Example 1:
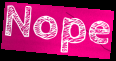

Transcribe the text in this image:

Nope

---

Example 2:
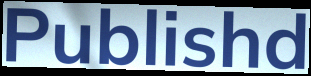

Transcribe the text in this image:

Publishd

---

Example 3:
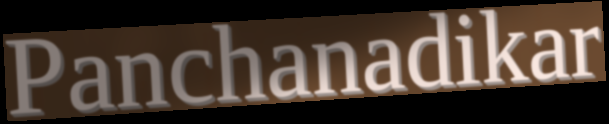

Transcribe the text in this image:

Panchanadikar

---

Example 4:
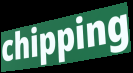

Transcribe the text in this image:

chipping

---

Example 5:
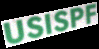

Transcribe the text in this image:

USISPF